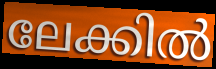
ലേക്കിൽ